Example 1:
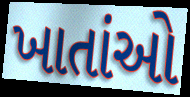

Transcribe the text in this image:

ખાતાંઓ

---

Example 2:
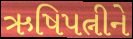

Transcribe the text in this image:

ઋષિપત્નીને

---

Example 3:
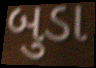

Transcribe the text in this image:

બુડા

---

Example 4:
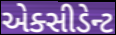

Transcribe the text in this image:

એક્સીડેન્ટ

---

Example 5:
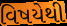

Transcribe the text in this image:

વિષયેથી